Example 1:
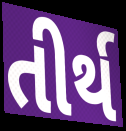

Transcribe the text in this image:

તીર્થ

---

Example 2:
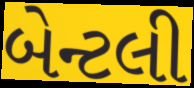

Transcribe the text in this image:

બેન્ટલી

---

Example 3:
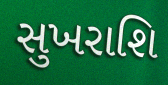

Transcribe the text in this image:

સુખરાશિ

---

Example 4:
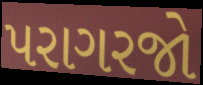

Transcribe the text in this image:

પરાગરજો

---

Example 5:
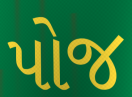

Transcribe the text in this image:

પોજ